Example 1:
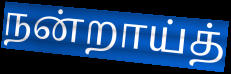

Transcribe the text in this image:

நன்றாய்த்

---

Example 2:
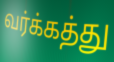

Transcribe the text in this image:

வர்க்கத்து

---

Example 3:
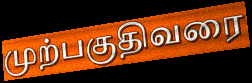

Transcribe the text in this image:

முற்பகுதிவரை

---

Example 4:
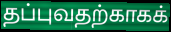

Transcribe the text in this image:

தப்புவதற்காகக்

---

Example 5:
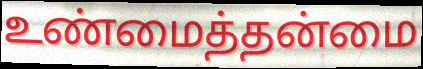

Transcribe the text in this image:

உண்மைத்தன்மை